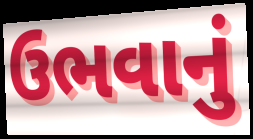
ઉભવાનું